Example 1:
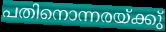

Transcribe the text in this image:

പതിനൊന്നരയ്ക്കു്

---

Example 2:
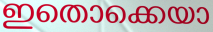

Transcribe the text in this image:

ഇതൊക്കെയാ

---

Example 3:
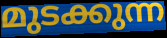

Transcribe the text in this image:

മുടക്കുന്ന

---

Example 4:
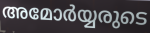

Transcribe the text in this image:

അമോർയ്യരുടെ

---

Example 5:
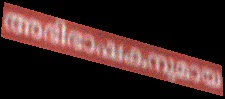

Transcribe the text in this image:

അഭിഭാഷകനുമായ